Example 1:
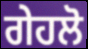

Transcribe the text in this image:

ਗੇਹਲੋ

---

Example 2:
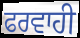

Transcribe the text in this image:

ਫਰਵਾਹੀ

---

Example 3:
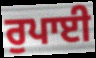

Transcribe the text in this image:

ਰੁਪਾਈ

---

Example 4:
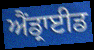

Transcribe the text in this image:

ਐਂਡ੍ਰਾਈਡ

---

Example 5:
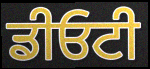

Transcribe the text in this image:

ਡੀਓਟੀ